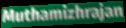
Muthamizhrajan